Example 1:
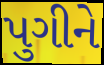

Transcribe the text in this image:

પુગીને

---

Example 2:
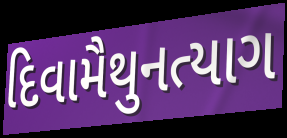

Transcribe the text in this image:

દિવામૈથુનત્યાગ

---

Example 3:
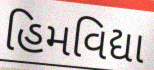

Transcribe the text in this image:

હિમવિદ્યા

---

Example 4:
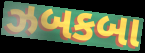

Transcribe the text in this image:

ઝબકબા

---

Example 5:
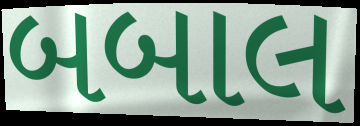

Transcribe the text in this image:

બબાલ